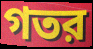
গতর